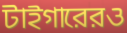
টাইগারেরও